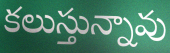
కలుస్తున్నావు